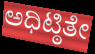
ಅಧಿಟ್ಠಿತೇ